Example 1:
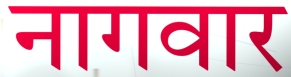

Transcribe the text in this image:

नागवार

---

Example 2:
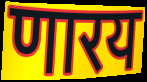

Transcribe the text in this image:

णारय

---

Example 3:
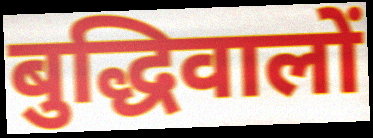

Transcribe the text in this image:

बुद्धिवालों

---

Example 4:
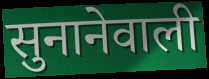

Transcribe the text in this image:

सुनानेवाली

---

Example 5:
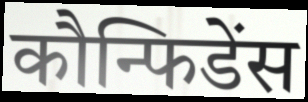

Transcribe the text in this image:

कौन्फिडेंस